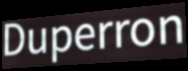
Duperron